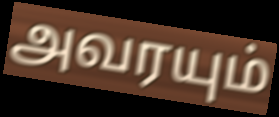
அவரயும்